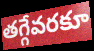
తగ్గేవరకూ